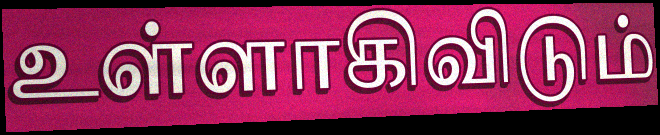
உள்ளாகிவிடும்